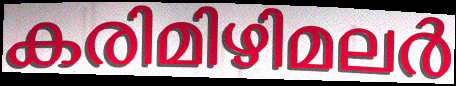
കരിമിഴിമലർ